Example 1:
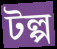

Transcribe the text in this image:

টল্প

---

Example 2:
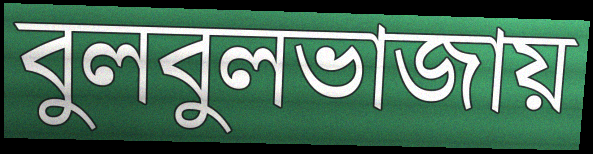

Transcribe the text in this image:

বুলবুলভাজায়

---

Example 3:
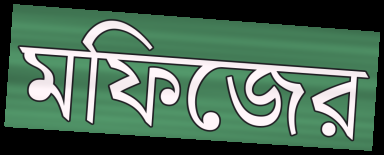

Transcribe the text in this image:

মফিজের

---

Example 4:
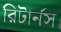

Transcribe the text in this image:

রিটার্নস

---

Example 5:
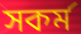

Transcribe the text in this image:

সকর্ম